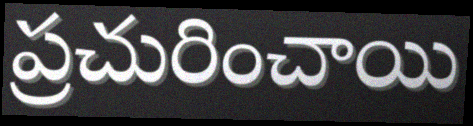
ప్రచురించాయి